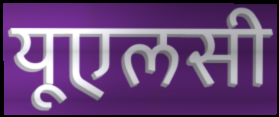
यूएलसी